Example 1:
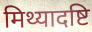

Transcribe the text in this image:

मिथ्यादष्टि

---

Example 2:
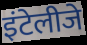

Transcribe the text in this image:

इंटेलीजे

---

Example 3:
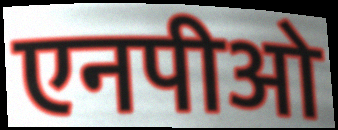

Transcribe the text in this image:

एनपीओ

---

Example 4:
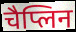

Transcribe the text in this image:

चैप्लिन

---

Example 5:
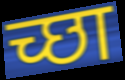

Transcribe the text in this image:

च्छा